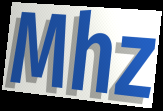
Mhz